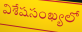
విశేషసంఖ్యలో